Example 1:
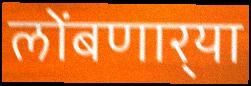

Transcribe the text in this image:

लोंबणार्‍या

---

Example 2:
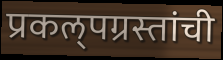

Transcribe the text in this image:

प्रकल्पग्रस्तांची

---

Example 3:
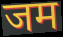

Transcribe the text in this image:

जम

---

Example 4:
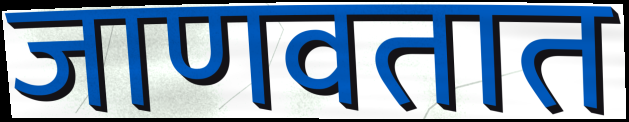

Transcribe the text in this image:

जाणवतात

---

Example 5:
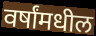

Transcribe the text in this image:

वर्षांमधील